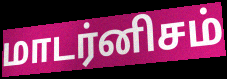
மாடர்னிசம்